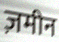
ज़मीन